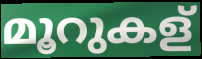
മൂറുകള്